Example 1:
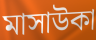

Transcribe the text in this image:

মাসাউকা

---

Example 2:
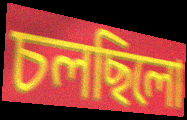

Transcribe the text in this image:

চলছিলো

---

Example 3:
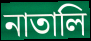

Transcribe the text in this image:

নাতালি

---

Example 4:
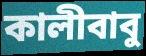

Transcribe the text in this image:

কালীবাবু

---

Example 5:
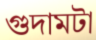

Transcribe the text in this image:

গুদামটা